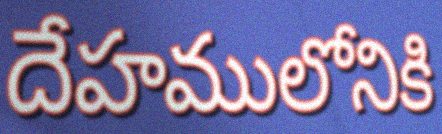
దేహములోనికి